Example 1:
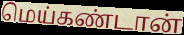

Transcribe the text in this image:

மெய்கண்டான்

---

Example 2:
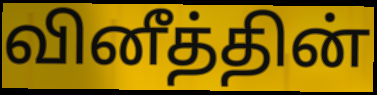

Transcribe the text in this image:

வினீத்தின்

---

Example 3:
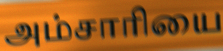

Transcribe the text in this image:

அம்சாரியை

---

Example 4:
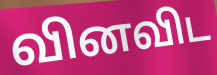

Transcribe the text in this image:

வினவிட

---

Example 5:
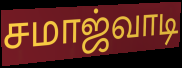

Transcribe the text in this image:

சமாஜ்வாடி